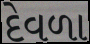
દેવળા